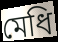
মেধি